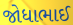
જોધાભાઈ